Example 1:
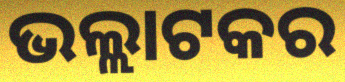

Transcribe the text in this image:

ଭଲ୍ଲାଟକର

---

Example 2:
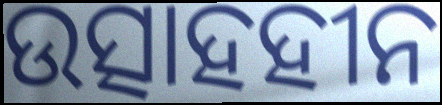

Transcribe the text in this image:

ଉତ୍ସାହହୀନ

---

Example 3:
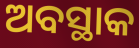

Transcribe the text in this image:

ଅବସ୍ଥାକ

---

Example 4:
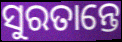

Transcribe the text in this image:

ସୁରତାନ୍ତେ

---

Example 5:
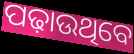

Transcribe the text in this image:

ପଢ଼ାଉଥିବେ